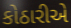
કોઠારીએ